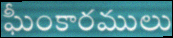
ఘీంకారములు